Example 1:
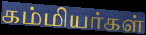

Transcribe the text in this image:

கம்மியர்கள்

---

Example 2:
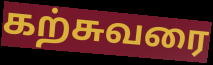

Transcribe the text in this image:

கற்சுவரை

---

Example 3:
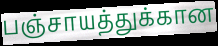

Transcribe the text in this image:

பஞ்சாயத்துக்கான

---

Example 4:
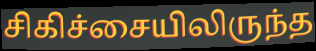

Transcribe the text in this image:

சிகிச்சையிலிருந்த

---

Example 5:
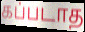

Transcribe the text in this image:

கப்படாத